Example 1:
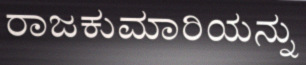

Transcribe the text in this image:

ರಾಜಕುಮಾರಿಯನ್ನು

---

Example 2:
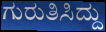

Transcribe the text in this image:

ಗುರುತಿಸಿದ್ದು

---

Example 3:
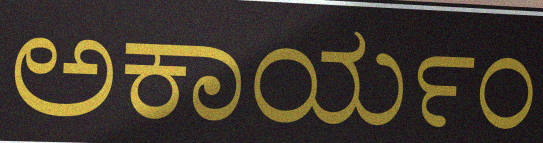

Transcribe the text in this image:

ಅಕಾರ್ಯಂ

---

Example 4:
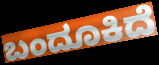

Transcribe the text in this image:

ಬಂದೂಕಿದೆ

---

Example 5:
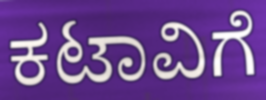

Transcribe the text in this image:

ಕಟಾವಿಗೆ